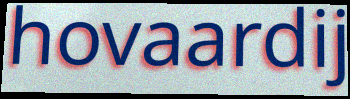
hovaardij